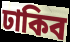
ঢাকিব